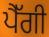
ਪੈੱਗੀ